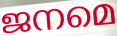
ജനമെ